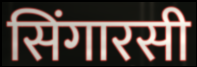
सिंगारसी